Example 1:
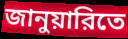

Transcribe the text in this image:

জানুয়ারিতে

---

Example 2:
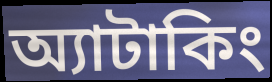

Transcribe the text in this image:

অ্যাটাকিং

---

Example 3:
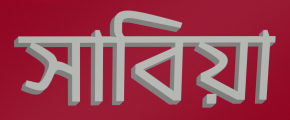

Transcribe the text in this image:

সাবিয়া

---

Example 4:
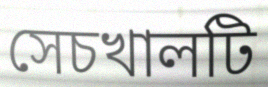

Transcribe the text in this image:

সেচখালটি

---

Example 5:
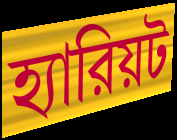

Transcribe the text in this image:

হ্যারিয়ট